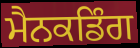
ਮੈਨਕਡਿੰਗ